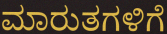
ಮಾರುತಗಳಿಗೆ